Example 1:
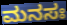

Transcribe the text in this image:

ಮನಸಃ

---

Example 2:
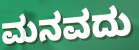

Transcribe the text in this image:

ಮನವದು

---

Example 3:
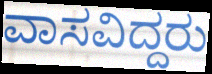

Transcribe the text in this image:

ವಾಸವಿದ್ದರು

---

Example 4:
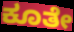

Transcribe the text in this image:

ಕೂತೇ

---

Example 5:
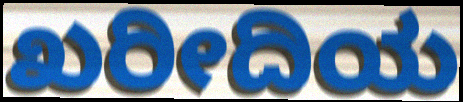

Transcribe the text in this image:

ಖರೀದಿಯ